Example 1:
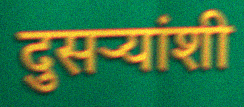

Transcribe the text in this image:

दुसर्‍यांशी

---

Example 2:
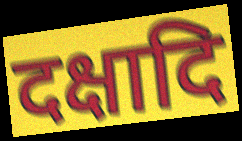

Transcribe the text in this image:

दक्षादि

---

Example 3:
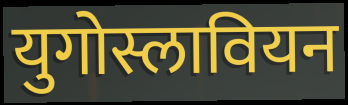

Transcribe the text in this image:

युगोस्लावियन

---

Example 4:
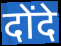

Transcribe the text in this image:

दोंदे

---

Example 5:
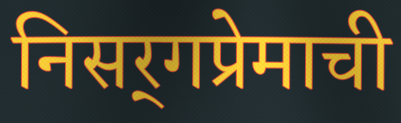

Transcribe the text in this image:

निसर्गप्रेमाची